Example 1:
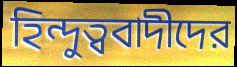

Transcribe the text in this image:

হিন্দুত্ববাদীদের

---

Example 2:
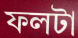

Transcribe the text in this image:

ফলটা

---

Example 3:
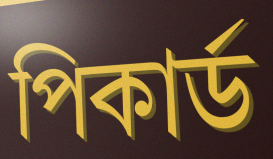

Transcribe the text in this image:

পিকার্ড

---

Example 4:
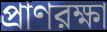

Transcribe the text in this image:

প্রাণরক্ষা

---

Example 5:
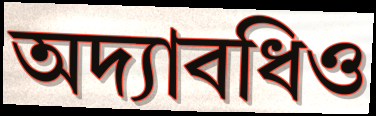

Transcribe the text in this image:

অদ্যাবধিও